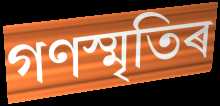
গণস্মৃতিৰ